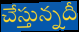
చేస్తున్నదీ